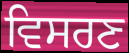
ਵਿਸਰਣ